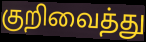
குறிவைத்து